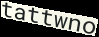
tattwno